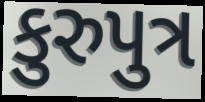
કુરુપુત્ર